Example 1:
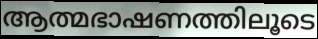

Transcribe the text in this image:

ആത്മഭാഷണത്തിലൂടെ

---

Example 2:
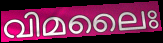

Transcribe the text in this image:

വിമലൈഃ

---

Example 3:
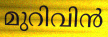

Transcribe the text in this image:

മുറിവിൻ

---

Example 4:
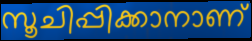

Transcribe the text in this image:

സൂചിപ്പിക്കാനാണ്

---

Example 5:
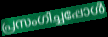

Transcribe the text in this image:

പ്രസംഗിച്ചപ്പോൾ